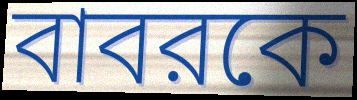
বাবরকে